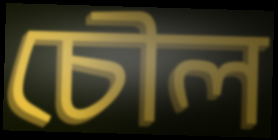
চৌল